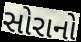
સોરાનો